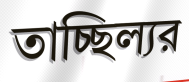
তাচ্ছিল্যর